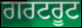
ਗਰਟਰੂਟ